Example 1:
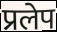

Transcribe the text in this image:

प्रलेप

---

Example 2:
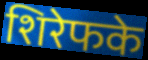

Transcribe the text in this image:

शिरेफके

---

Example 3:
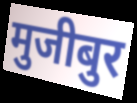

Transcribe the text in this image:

मुजीबुर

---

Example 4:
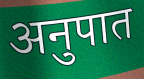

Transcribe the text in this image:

अनुपात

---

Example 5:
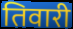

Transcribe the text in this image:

तिवारी